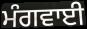
ਮੰਗਵਾਈ